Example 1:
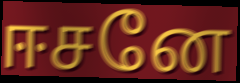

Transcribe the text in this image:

ஈசனே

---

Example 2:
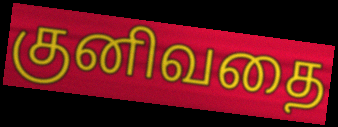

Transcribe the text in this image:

குனிவதை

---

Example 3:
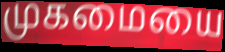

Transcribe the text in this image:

முகமையை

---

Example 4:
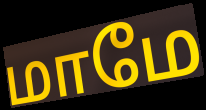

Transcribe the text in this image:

மாமே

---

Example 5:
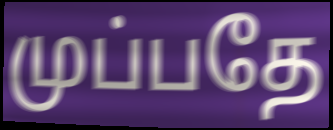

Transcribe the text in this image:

முப்பதே